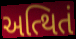
અત્થિતં